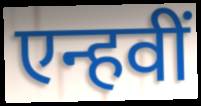
एन्हवीं